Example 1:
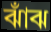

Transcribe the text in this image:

ঝাঁঝ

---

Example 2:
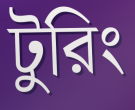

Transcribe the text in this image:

টুরিং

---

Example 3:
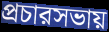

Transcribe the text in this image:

প্রচারসভায়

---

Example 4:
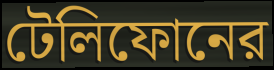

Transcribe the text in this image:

টেলিফোনের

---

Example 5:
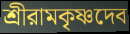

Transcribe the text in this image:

শ্রীরামকৃষ্ণদেব